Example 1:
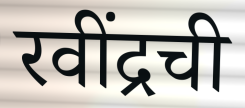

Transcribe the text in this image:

रवींद्रची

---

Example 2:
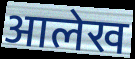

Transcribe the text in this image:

आलेख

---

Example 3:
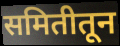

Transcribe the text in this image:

समितीतून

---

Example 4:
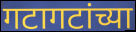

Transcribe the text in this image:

गटागटांच्या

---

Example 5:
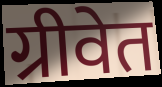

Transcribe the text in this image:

ग्रीवेत